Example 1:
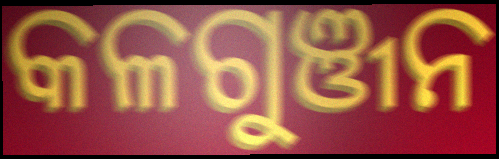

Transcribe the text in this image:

କଳଗୁଞ୍ଜନ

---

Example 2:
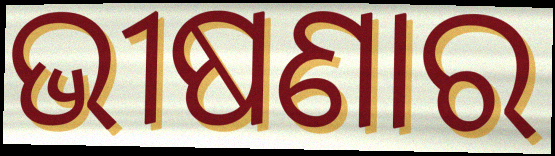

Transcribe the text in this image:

ଭୀଷଣାର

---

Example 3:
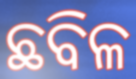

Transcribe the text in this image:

ଛବିଳ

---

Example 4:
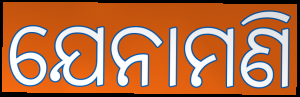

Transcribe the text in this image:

ଯେନାମଣି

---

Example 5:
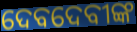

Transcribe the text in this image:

ଦେବଦେବୀଙ୍କ